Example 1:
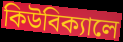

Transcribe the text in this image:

কিউবিক্যালে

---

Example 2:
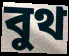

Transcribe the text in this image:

বুথ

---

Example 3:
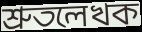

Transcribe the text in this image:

শ্রুতলেখক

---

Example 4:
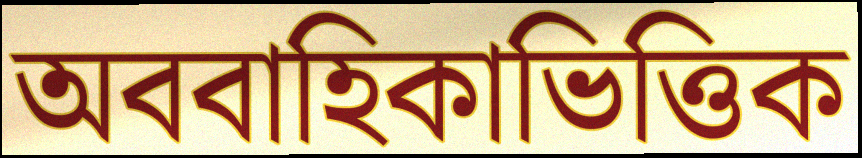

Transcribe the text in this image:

অববাহিকাভিত্তিক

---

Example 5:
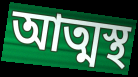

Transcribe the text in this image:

আত্মস্থ